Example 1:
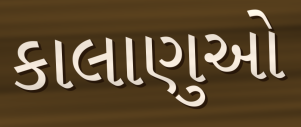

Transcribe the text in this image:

કાલાણુઓ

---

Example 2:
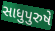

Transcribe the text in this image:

સાધુપુરુષે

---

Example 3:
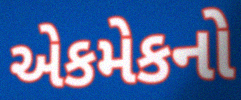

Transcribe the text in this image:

એકમેકનો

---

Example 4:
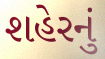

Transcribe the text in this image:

શહેરનું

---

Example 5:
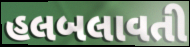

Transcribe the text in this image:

હલબલાવતી